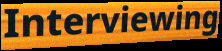
Interviewing